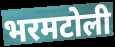
भरमटोली